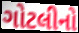
ગોટલીનો